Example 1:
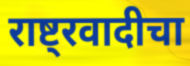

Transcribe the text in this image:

राष्ट्रवादीचा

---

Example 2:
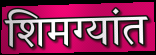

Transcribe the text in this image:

शिमग्यांत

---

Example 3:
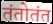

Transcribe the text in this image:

तंतोतंत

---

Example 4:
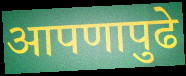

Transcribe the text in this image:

आपणापुढे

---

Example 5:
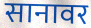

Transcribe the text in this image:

सानावर